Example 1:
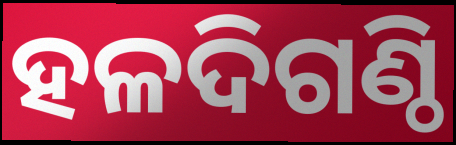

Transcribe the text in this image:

ହଳଦିଗଣ୍ଠି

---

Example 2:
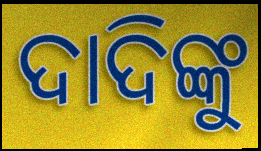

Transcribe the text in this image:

ଦାଦିଙ୍କୁ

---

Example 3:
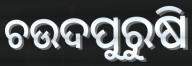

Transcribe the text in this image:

ଚଉଦପୁରୁଷି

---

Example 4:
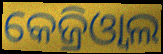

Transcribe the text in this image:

କେଜ୍ରିଓ୍ଵାଲ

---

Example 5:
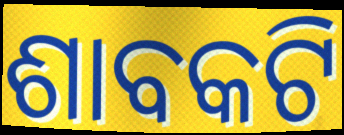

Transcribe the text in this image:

ଶାବକଟି